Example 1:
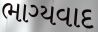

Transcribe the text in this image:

ભાગ્યવાદ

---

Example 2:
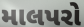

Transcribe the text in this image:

માલપરો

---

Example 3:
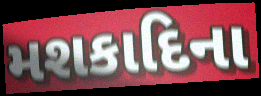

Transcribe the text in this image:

મશકાદિના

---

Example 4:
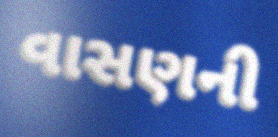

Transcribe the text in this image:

વાસણની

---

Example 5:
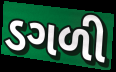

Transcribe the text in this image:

ડગળી